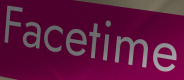
Facetime